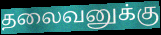
தலைவனுக்கு